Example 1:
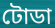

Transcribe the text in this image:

টোডা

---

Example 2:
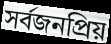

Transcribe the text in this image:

সর্বজনপ্রিয়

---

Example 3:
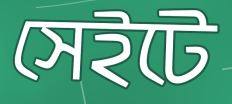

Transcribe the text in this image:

সেইটে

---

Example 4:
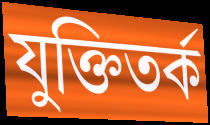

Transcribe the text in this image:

যুক্তিতর্ক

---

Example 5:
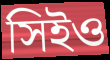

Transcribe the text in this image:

সিইও